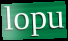
lopu